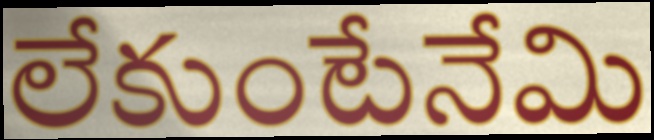
లేకుంటేనేమి